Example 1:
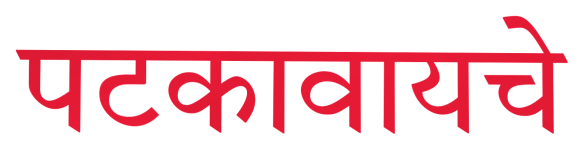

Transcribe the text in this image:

पटकावायचे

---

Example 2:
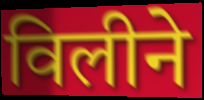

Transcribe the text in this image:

विलीने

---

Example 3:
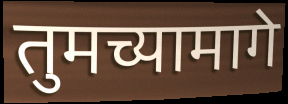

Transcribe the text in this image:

तुमच्यामागे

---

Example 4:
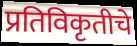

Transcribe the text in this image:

प्रतिविकृतीचे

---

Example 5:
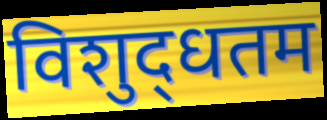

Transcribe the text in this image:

विशुद्धतम